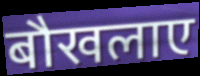
बौखलाए